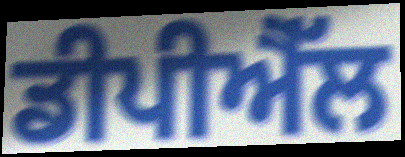
ਡੀਪੀਐੱਲ